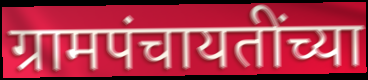
ग्रामपंचायतींच्या